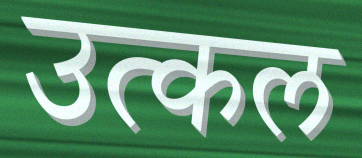
उत्कल